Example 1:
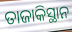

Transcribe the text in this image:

ତାଜାକିସ୍ଥାନ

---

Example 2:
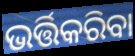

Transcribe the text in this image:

ଭର୍ତ୍ତିକରିବା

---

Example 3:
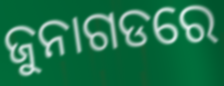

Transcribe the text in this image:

ଜୁନାଗଡରେ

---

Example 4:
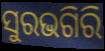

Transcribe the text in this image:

ସୁରଭଗିରି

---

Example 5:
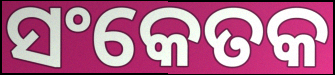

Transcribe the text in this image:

ସଂକେତକ